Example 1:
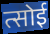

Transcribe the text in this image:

त्सोई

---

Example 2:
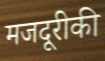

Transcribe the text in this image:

मजदूरीकी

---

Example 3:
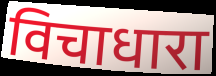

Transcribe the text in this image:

विचाधारा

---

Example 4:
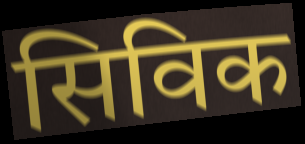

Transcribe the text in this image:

सिविक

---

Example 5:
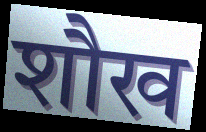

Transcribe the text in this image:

शौख